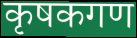
कृषकगण